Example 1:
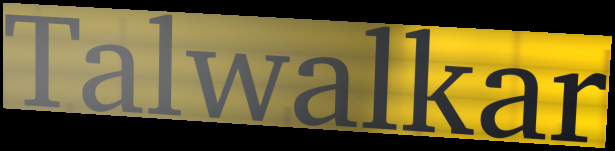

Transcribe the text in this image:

Talwalkar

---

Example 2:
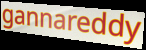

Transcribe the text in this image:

gannareddy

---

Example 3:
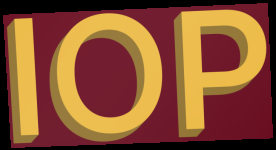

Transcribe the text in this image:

IOP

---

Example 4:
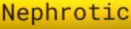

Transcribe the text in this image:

Nephrotic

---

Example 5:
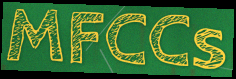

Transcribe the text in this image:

MFCCs